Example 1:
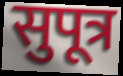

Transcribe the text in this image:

सुपूत्र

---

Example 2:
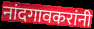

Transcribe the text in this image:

नांदगावकरांनी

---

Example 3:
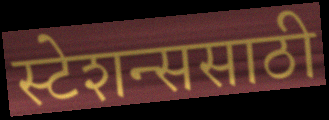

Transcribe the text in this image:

स्टेशन्ससाठी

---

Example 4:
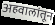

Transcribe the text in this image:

अहवालांतून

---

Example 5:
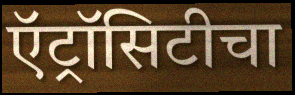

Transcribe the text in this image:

ऍट्रॉसिटीचा